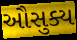
ઔસુક્ય